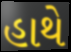
હાથે